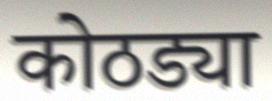
कोठड्या